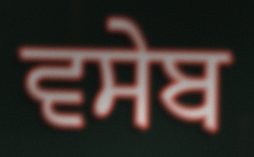
ਵਸੇਬ